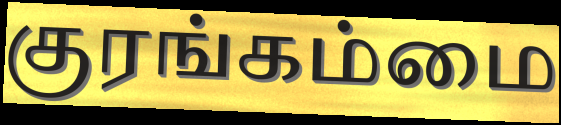
குரங்கம்மை